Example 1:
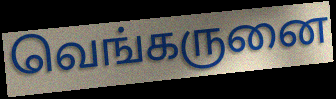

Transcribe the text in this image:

வெங்கருனை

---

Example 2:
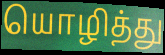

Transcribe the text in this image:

யொழித்து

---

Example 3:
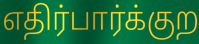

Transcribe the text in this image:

எதிர்பார்க்குற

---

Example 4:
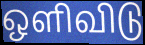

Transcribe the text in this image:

ஒளிவிடு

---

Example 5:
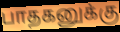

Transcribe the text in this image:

பாதகனுக்கு